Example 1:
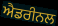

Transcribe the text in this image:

ਐਡਰੀਨਲ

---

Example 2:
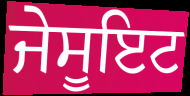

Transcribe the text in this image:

ਜੇਸੂਇਟ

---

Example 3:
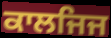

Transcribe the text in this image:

ਕਾਲਜਿਜ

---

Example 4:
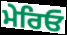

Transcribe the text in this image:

ਮੇਰਿਓ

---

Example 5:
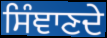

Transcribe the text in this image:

ਸਿੰਞਾਣਦੇ